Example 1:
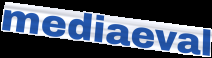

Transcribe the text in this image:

mediaeval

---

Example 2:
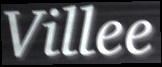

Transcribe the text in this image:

Villee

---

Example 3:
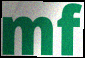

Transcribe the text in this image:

mf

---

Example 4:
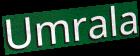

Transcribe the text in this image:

Umrala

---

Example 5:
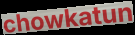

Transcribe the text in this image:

chowkatun